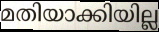
മതിയാക്കിയില്ല